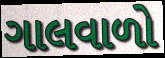
ગાલવાળો